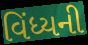
વિંધ્યની